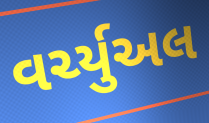
વર્ચ્યુઅલ